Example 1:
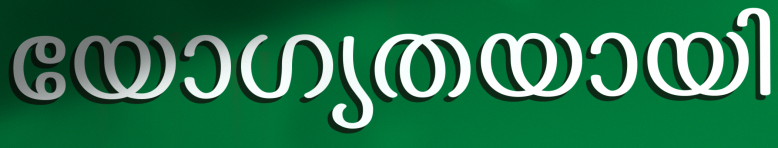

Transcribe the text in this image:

യോഗ്യതയായി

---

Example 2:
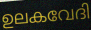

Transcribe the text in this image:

ഉലകവേദി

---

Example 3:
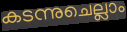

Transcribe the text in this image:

കടന്നുചെല്ലാം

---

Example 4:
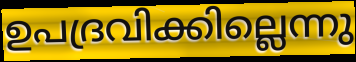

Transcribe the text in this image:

ഉപദ്രവിക്കില്ലെന്നു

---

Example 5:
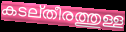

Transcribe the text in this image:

കടല്തീരത്തുള്ള